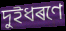
দুইধৰণে